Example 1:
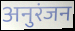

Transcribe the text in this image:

अनुरंजन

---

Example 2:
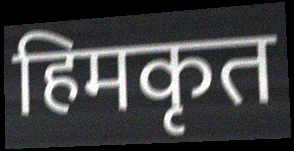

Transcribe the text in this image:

हिमकृत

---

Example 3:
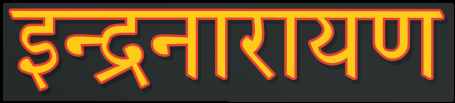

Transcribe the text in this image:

इन्द्रनारायण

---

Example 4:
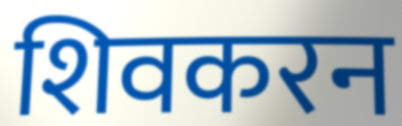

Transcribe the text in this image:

शिवकरन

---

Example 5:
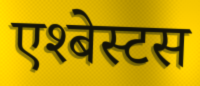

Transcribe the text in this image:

एश्बेस्टस